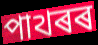
পাথৰৰ